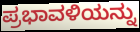
ಪ್ರಭಾವಳಿಯನ್ನು